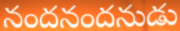
నందనందనుడు